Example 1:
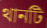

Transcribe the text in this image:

থানটি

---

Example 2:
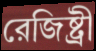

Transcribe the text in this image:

রেজিষ্ট্রী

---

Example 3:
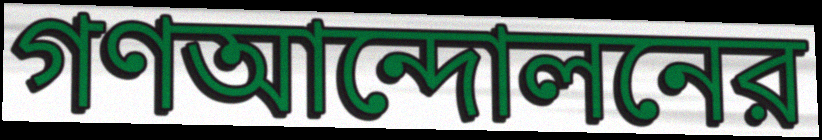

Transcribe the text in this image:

গণআন্দোলনের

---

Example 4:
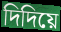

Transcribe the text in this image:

দিদিয়ে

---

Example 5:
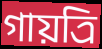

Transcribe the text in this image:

গায়ত্রি